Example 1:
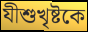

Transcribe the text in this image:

যীশুখৃষ্টকে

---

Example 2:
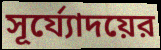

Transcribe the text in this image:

সূর্য্যোদয়ের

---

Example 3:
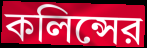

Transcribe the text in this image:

কলিন্সের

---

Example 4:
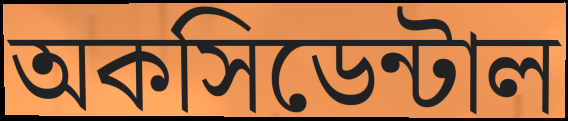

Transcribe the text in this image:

অকসিডেন্টাল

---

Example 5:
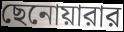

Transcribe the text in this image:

ছেনোয়ারার